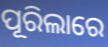
ପୂରିଲାରେ